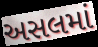
અસલમાં